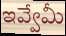
ఇవ్వేమీ